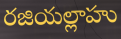
రజియల్లాహు